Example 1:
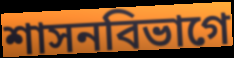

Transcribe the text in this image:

শাসনবিভাগে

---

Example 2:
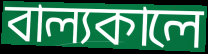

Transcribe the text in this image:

বাল্যকালে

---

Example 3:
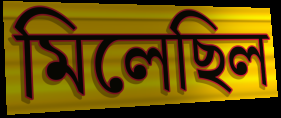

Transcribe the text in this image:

মিলেছিল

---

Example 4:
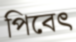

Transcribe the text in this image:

পিবেৎ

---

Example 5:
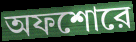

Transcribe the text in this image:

অফশোরে